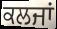
ਕਲਜਾਂ